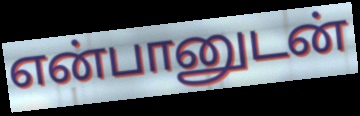
என்பானுடன்